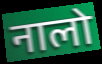
नालो